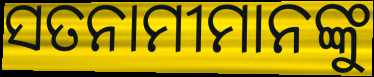
ସତନାମୀମାନଙ୍କୁ